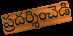
ప్రదర్శించెడి